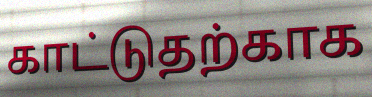
காட்டுதற்காக